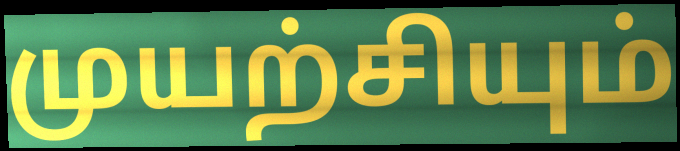
முயற்சியும்